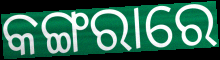
କଙ୍ଗରାରେ